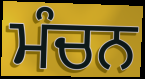
ਮੰਚਨ